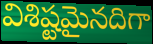
విశిష్టమైనదిగా